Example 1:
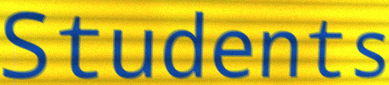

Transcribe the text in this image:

Students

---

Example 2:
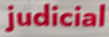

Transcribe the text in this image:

judicial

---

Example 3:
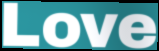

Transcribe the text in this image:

Love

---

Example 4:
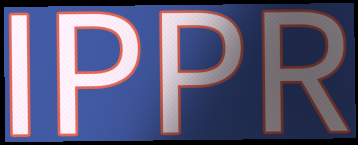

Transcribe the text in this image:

IPPR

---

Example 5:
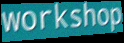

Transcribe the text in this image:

workshop